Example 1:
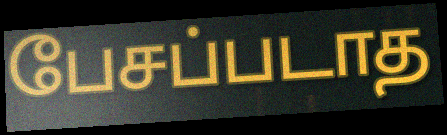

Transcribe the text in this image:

பேசப்படாத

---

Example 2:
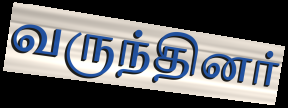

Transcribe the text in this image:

வருந்தினர்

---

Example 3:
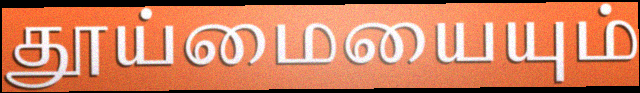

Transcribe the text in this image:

தூய்மையையும்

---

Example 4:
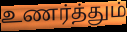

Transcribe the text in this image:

உணர்த்தும்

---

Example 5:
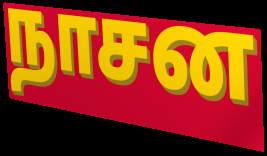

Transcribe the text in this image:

நாசன